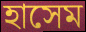
হাসেম